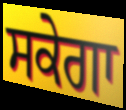
ਸਕੇਗਾ